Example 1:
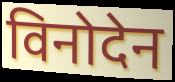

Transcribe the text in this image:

विनोदेन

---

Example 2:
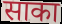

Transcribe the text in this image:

साका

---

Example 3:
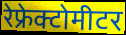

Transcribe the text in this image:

रेफ्रेक्टोमीटर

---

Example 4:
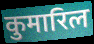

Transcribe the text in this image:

कुमारिल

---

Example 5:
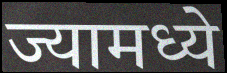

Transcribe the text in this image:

ज्यामध्ये